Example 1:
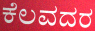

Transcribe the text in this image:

ಕೆಲವದರ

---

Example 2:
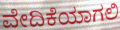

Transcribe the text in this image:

ವೇದಿಕೆಯಾಗಲಿ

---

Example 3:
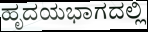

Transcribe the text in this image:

ಹೃದಯಭಾಗದಲ್ಲಿ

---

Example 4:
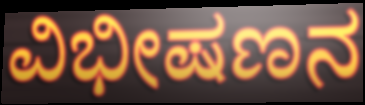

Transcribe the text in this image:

ವಿಭೀಷಣನ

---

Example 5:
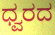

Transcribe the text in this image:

ಧ್ವರದ